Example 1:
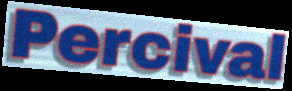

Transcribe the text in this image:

Percival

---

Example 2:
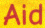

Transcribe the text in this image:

Aid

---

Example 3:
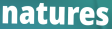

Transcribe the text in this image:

natures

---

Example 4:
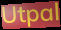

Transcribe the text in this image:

Utpal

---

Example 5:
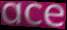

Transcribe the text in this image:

ace